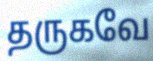
தருகவே